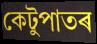
কেটুপাতৰ